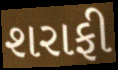
શરાફી